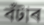
বঁটাৰ